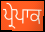
ਪ੍ਰੇਪਾਕ